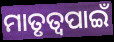
ମାତୃତ୍ୱପାଇଁ